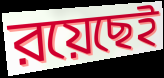
রয়েছেই